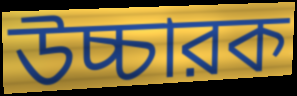
উচ্চারক